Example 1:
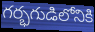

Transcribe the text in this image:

గర్భగుడిలోనికి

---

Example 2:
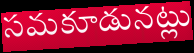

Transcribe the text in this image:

సమకూడునట్లు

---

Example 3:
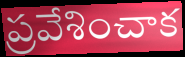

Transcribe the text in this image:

ప్రవేశించాక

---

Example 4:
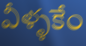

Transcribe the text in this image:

వీళ్ళకేం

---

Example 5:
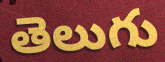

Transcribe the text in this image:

తెలుగు